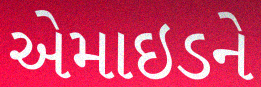
એમાઇડને